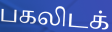
பகலிடக்